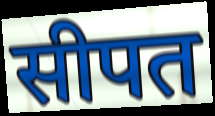
सीपत